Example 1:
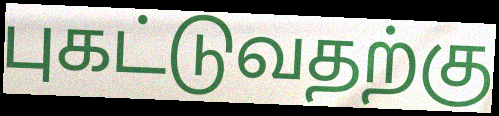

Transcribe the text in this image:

புகட்டுவதற்கு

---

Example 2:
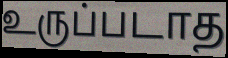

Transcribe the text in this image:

உருப்படாத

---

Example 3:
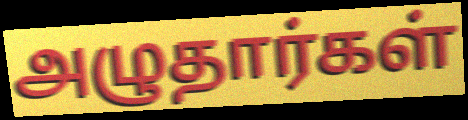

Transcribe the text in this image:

அழுதார்கள்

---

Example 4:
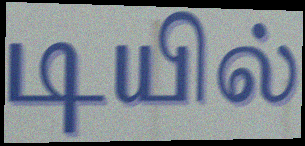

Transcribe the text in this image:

டியில்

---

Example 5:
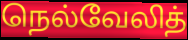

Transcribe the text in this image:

நெல்வேலித்